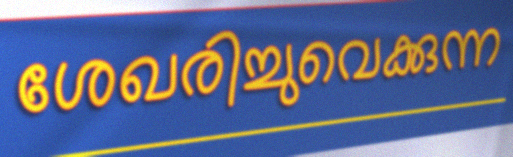
ശേഖരിച്ചുവെക്കുന്ന